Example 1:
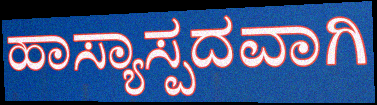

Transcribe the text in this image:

ಹಾಸ್ಯಾಸ್ಪದವಾಗಿ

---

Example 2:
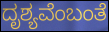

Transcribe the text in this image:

ದೃಶ್ಯವೆಂಬಂತೆ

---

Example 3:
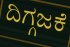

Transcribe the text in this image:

ದಿಗ್ಗಜಕೆ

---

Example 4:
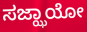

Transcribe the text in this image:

ಸಜ್ಝಾಯೋ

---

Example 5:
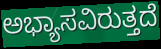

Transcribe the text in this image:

ಅಭ್ಯಾಸವಿರುತ್ತದೆ